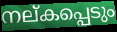
നല്കപ്പെടും